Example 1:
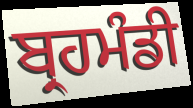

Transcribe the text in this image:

ਬ੍ਰਹਮੰਡੀ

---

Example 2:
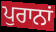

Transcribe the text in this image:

ਪੁਰਾਨਾਂ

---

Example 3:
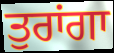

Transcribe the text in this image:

ਤੁਰਾਂਗਾ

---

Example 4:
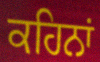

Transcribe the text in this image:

ਕਹਿਨਾਂ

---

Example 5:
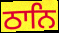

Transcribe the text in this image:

ਠਾਨਿ